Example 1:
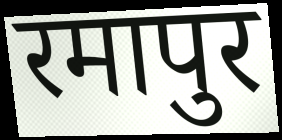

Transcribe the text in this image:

रमापुर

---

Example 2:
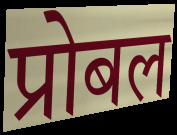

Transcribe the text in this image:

प्रोबल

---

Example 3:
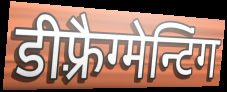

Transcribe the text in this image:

डीफ़्रैग्मेन्टिंग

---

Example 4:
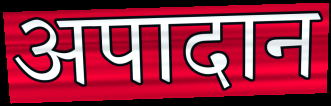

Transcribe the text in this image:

अपादान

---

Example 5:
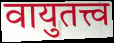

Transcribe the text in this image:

वायुतत्त्व